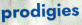
prodigies